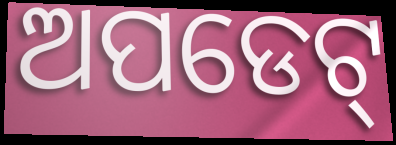
ଅପଡେଟ୍